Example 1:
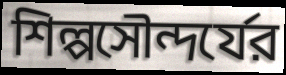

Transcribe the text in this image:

শিল্পসৌন্দর্যের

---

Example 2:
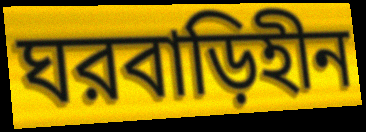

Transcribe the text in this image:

ঘরবাড়িহীন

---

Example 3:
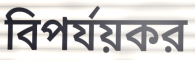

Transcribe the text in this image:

বিপর্যয়কর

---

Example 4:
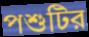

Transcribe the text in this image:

পশুটির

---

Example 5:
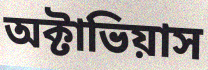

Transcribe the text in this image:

অক্টাভিয়াস